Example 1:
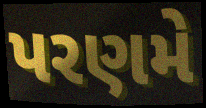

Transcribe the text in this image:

પરણમે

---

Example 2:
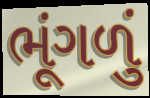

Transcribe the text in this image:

ભૂંગળું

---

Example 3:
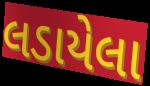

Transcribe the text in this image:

લડાયેલા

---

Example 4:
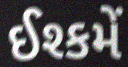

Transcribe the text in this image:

ઈશ્કમેં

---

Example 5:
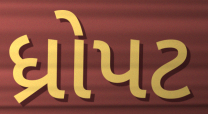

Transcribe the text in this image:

ધ્રોપટ